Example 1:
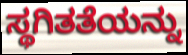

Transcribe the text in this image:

ಸ್ಥಗಿತತೆಯನ್ನು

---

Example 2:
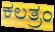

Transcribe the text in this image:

ಕಲತ್ರಂ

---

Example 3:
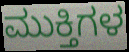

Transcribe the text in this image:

ಮುಕ್ತಿಗಳ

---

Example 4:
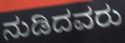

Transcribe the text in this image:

ನುಡಿದವರು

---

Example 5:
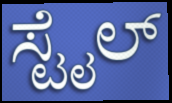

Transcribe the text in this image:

ಸ್ಟೈಲ್